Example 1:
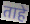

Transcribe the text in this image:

ताहे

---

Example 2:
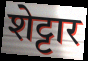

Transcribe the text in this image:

शेट्टार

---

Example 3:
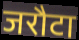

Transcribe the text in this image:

जरौटा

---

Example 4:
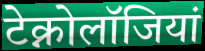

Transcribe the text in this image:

टेक्नोलॉजियां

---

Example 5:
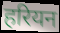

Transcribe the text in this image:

हरियन